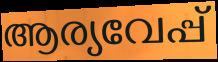
ആര്യവേപ്പ്